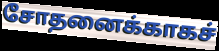
சோதனைக்காகச்